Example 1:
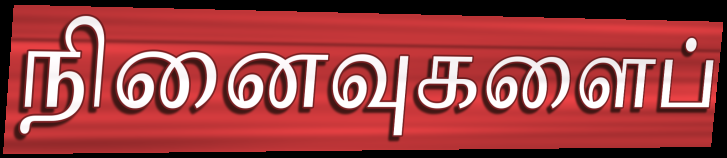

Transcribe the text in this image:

நினைவுகளைப்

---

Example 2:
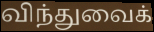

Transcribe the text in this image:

விந்துவைக்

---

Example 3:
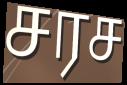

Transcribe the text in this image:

சரச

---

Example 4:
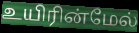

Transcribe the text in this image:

உயிரின்மேல்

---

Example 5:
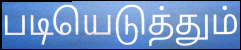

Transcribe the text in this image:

படியெடுத்தும்